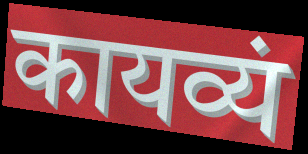
कायव्यं